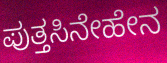
ಪುತ್ತಸಿನೇಹೇನ